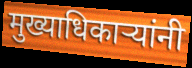
मुख्याधिकाऱ्यांनी